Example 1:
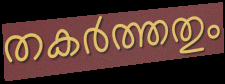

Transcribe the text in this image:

തകർത്തതും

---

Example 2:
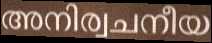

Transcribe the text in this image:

അനിര്വചനീയ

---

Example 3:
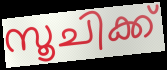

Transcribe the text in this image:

സൂചിക്ക്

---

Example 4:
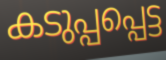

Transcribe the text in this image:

കടുപ്പപ്പെട്ട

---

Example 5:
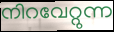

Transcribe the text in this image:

നിറവേറ്റുന്ന